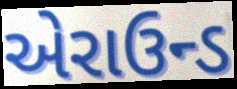
એરાઉન્ડ